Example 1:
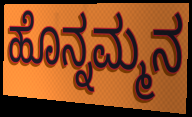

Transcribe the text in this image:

ಹೊನ್ನಮ್ಮನ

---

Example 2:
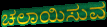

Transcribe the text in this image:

ಚಲಾಯಿಸುವ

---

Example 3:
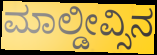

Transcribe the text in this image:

ಮಾಲ್ಡೀವ್ಸಿನ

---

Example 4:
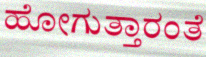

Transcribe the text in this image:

ಹೋಗುತ್ತಾರಂತೆ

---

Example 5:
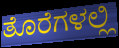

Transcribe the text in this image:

ತೊರೆಗಳಲ್ಲಿ